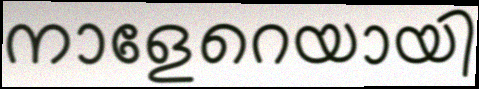
നാളേറെയായി